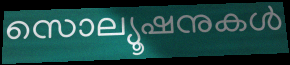
സൊല്യൂഷനുകൾ